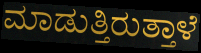
ಮಾಡುತ್ತಿರುತ್ತಾಳೆ